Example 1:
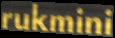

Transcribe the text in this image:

rukmini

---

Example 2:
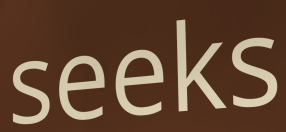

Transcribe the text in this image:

seeks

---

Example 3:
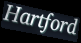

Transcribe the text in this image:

Hartford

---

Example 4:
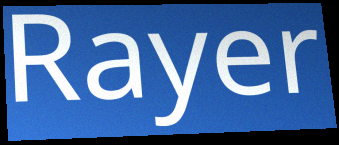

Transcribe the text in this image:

Rayer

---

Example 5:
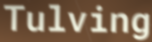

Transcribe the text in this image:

Tulving